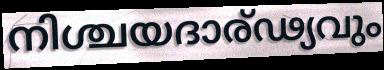
നിശ്ചയദാര്ഢ്യവും